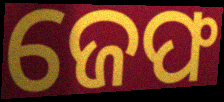
ଜେଫ